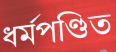
ধর্মপণ্ডিত